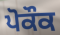
ਪੋਕੌਕ